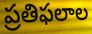
ప్రతిఫలాల